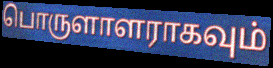
பொருளாளராகவும்